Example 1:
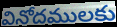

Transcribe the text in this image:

వినోదములకు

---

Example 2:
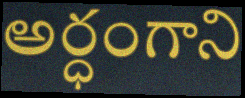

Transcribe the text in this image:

అర్ధంగాని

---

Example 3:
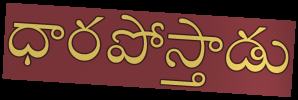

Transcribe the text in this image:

ధారపోస్తాడు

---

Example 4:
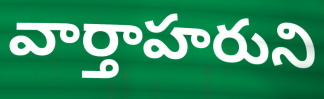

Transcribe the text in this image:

వార్తాహరుని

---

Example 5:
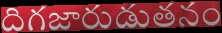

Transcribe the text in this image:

దిగజారుడుతనం